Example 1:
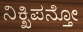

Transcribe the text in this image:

ನಿಕ್ಖಿಪನ್ತೋ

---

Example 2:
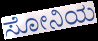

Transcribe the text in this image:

ಸೋನಿಯ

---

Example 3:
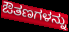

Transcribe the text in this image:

ಔತಣಗಳನ್ನು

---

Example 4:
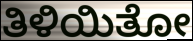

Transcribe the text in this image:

ತಿಳಿಯಿತೋ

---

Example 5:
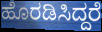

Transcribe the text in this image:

ಹೊರಡಿಸಿದ್ದರೆ